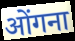
ओंगना